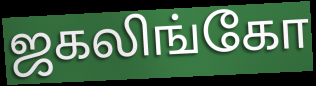
ஜகலிங்கோ